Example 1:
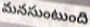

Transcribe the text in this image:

మనసుంటుంది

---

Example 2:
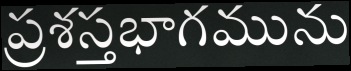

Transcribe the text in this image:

ప్రశస్తభాగమును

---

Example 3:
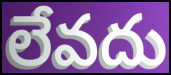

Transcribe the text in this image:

లేవదు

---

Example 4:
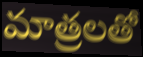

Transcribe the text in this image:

మాత్రలతో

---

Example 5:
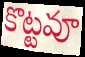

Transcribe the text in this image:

కొట్టవూ